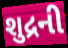
શુદ્રની